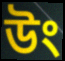
উং